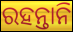
ରହନ୍ତାନି